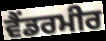
ਵੈਂਡਰਮੀਰ